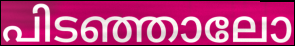
പിടഞ്ഞാലോ